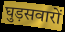
घुड़सवारों